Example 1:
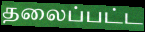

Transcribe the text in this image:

தலைப்பட்ட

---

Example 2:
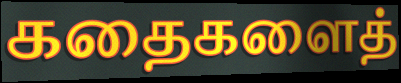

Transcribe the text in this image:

கதைகளைத்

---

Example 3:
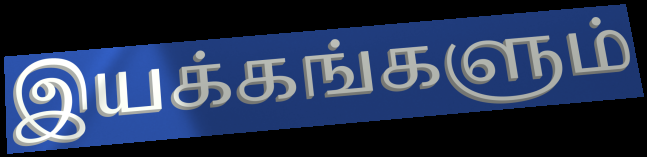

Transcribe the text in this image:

இயக்கங்களும்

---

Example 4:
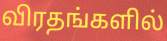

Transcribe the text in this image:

விரதங்களில்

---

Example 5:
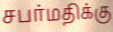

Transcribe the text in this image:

சபர்மதிக்கு